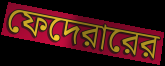
ফেদেরারের